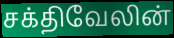
சக்திவேலின்